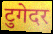
टुगेदर